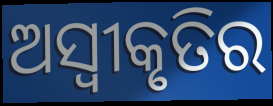
ଅସ୍ୱୀକୃତିର